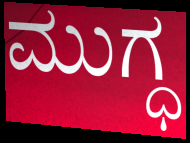
ಮುಗ್ಧ